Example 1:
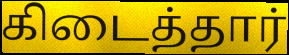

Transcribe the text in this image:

கிடைத்தார்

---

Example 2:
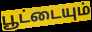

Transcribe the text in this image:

பூட்டையும்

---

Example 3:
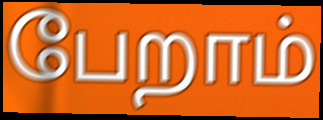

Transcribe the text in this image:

பேறாம்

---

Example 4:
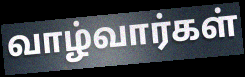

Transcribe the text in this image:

வாழ்வார்கள்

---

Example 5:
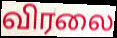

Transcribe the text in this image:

விரலை